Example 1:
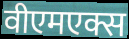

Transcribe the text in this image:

वीएमएक्स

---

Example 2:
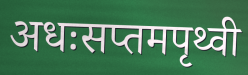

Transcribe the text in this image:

अधःसप्तमपृथ्वी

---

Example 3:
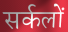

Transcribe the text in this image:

सर्कलों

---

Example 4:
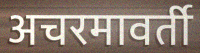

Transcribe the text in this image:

अचरमावर्ती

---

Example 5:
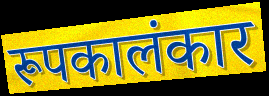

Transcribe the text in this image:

रूपकालंकार